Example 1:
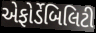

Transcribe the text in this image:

એફોર્ડેબિલિટી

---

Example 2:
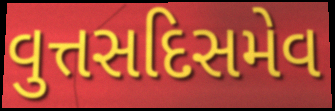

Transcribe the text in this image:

વુત્તસદિસમેવ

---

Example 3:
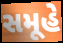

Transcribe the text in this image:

સમૂહે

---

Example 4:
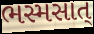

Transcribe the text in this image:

ભસ્મસાત્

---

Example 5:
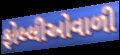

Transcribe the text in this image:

ફોલ્લીઓવાળી